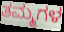
ತಮ್ಮಗಳ